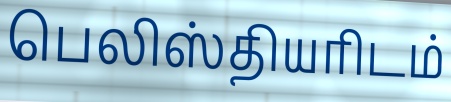
பெலிஸ்தியரிடம்